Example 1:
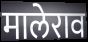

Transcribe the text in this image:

मालेराव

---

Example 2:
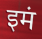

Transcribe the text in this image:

इमं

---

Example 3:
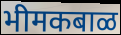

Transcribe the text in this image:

भीमकबाळ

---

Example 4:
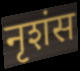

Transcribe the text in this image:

नृशंस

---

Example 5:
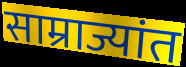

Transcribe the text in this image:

साम्राज्यांत